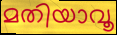
മതിയാവൂ